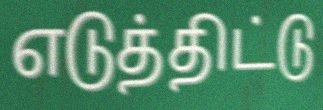
எடுத்திட்டு